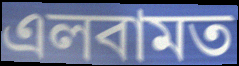
এলবামত